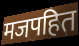
मजपहित